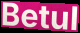
Betul